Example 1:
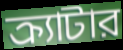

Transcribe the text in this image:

ক্র্যাটার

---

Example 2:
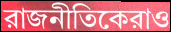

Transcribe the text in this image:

রাজনীতিকেরাও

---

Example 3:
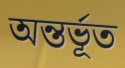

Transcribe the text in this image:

অন্তর্ভূত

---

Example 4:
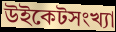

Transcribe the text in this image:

উইকেটসংখ্যা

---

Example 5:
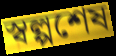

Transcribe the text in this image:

স্বল্পশেষ